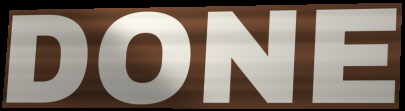
DONE